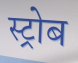
स्ट्रोब